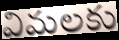
విమలకు